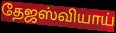
தேஜஸ்வியாய்